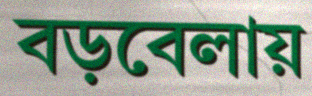
বড়বেলায়